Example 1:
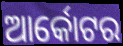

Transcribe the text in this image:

ଆର୍କୋଟର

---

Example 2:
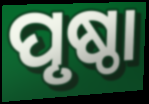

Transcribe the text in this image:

ପୃଷ୍ଠା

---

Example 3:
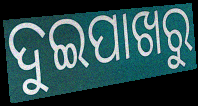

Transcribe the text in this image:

ଦୁଇପାଖରୁ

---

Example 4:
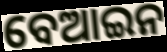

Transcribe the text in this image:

ବେଆଇନ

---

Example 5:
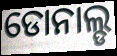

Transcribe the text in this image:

ଡୋନାଲ୍ଡ